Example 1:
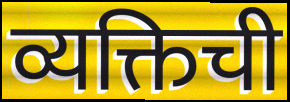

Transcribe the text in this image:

व्यक्तिची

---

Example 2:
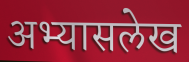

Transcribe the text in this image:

अभ्यासलेख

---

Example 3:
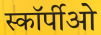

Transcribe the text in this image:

स्कॉर्पीओ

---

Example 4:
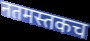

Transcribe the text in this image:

नतमस्तकच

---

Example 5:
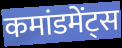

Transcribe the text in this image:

कमांडमेंट्स